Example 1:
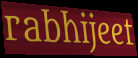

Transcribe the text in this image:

rabhijeet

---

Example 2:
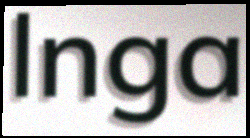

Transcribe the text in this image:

lnga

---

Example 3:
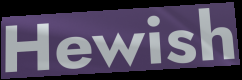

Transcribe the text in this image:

Hewish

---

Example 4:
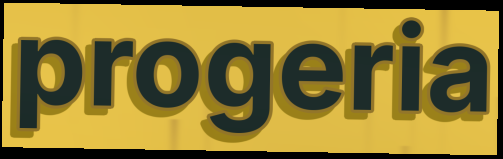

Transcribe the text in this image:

progeria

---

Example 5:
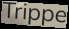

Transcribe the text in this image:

Trippe